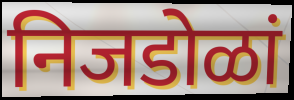
निजडोळां